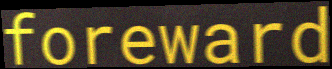
foreward